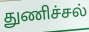
துணிச்சல்